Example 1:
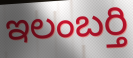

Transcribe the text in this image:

ఇలంబర్తి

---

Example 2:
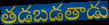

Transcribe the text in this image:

తడబడతాడు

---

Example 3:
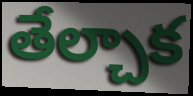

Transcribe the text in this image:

తేల్చాక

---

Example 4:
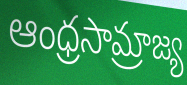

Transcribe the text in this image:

ఆంధ్రసామ్రాజ్య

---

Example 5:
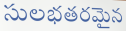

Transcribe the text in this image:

సులభతరమైన